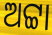
ଅଟ୍ଟା